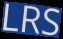
LRS